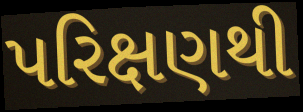
પરિક્ષણથી